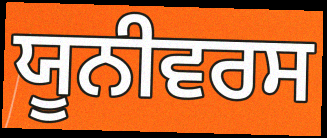
ਯੂਨੀਵਰਸ